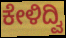
ಕೇಳಿದ್ವಿ